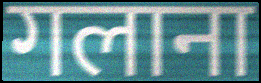
गलाना